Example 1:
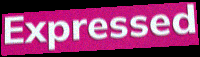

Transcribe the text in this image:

Expressed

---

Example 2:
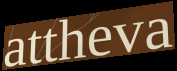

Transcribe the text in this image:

attheva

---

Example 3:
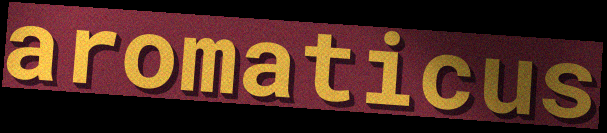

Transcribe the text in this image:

aromaticus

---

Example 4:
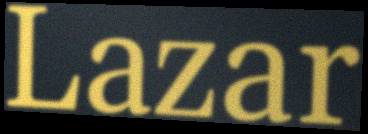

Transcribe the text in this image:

Lazar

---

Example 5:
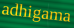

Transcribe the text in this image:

adhigama